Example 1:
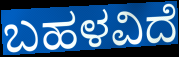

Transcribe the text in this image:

ಬಹಳವಿದೆ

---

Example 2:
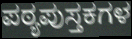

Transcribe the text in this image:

ಪಠ್ಯಪುಸ್ತಕಗಳ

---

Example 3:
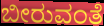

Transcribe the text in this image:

ಬೀರುವಂತೆ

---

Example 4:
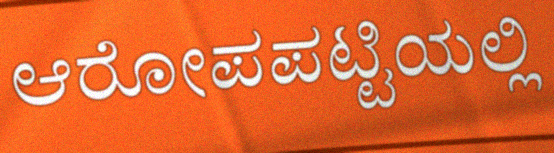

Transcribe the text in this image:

ಆರೋಪಪಟ್ಟಿಯಲ್ಲಿ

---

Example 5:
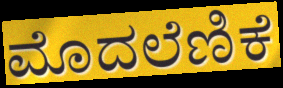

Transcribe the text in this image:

ಮೊದಲೆಣಿಕೆ